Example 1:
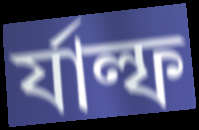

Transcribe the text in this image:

র্যাল্ফ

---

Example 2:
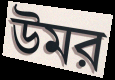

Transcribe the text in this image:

উমর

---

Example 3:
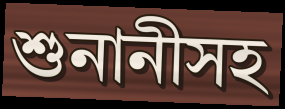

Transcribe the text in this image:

শুনানীসহ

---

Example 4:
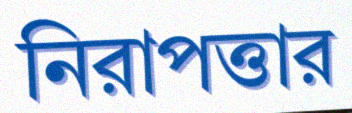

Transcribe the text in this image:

নিরাপত্তার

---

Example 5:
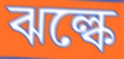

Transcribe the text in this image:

ঝল্কে